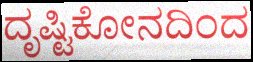
ದೃಷ್ಟಿಕೋನದಿಂದ